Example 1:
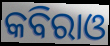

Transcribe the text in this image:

କବିରାଓ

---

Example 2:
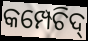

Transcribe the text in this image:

କମ୍ପେଚିଦ୍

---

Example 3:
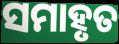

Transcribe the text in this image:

ସମାହୃତ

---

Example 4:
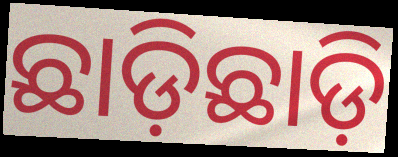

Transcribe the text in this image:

ଛାଡ଼ିଛାଡ଼ି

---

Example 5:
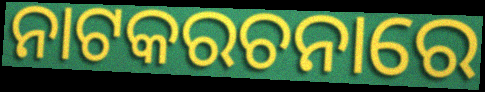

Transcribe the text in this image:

ନାଟକରଚନାରେ